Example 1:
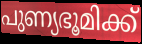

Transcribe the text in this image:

പുണ്യഭൂമിക്ക്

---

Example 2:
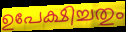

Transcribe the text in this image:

ഉപേക്ഷിച്ചതും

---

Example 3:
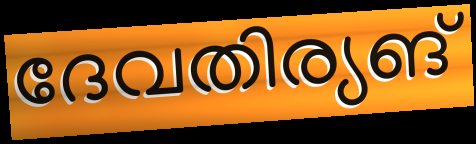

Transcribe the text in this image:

ദേവതിര്യങ്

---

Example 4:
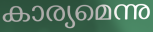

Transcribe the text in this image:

കാര്യമെന്നു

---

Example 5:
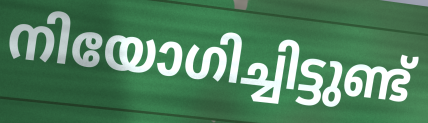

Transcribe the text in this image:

നിയോഗിച്ചിട്ടുണ്ട്